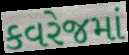
કવરેજમાં